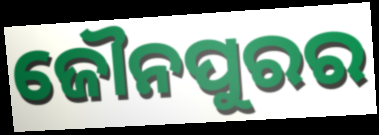
ଜୌନପୁରର